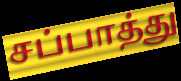
சப்பாத்து